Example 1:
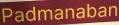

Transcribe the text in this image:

Padmanaban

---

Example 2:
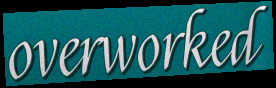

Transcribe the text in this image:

overworked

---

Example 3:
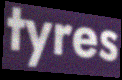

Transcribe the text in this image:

tyres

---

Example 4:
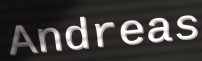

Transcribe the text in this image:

Andreas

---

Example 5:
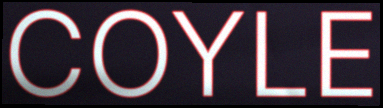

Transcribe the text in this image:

COYLE